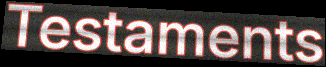
Testaments